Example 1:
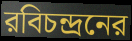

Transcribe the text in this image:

রবিচন্দ্রনের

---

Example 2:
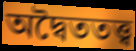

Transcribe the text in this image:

অদ্বৈততত্ত্ব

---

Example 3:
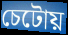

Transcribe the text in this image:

চেটোয়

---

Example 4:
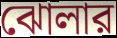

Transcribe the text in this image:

ঝোলার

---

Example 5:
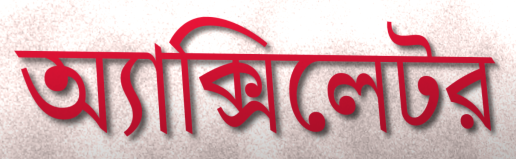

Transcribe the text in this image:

অ্যাক্সিলেটর